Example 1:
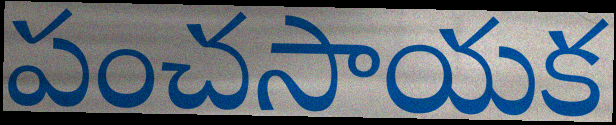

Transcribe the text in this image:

పంచసాయక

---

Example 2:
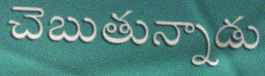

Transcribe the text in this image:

చెబుతున్నాడు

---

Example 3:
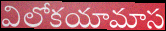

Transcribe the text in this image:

విలోకయామాస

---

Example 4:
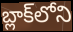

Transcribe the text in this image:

బ్లాక్‌లోని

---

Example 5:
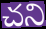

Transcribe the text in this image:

చని